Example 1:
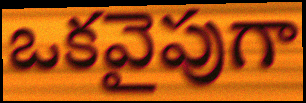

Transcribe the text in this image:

ఒకవైపుగా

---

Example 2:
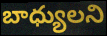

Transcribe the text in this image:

బాధ్యులని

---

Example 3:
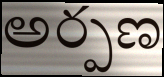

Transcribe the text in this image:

అర్పణ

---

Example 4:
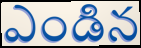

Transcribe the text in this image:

ఎండిన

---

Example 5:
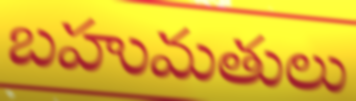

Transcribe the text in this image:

బహుమతులు